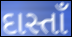
દાસ્તાઁ